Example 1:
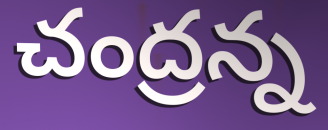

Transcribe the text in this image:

చంద్రన్న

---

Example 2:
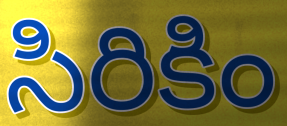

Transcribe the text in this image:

సిరికిం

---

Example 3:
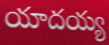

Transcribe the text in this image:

యాదయ్య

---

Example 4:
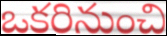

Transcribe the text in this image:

ఒకరినుంచి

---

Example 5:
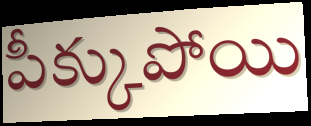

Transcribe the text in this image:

పీక్కుపోయి